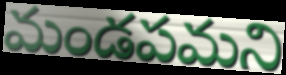
మండపమని